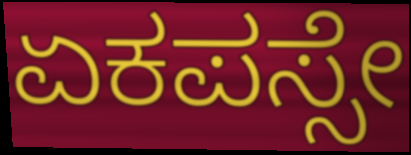
ಏಕಪಸ್ಸೇ